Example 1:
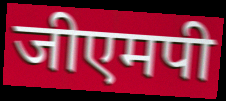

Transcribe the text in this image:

जीएमपी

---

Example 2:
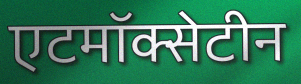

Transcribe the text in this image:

एटमॉक्सेटीन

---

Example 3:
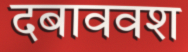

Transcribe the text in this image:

दबाववश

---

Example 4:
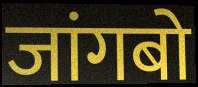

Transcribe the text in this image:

जांगबो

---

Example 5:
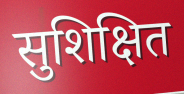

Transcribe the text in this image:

सुशिक्षित